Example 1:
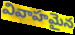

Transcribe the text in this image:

వివాహమైన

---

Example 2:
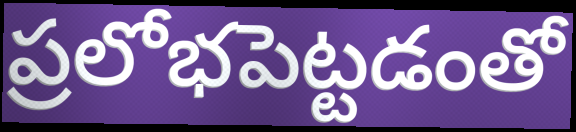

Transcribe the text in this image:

ప్రలోభపెట్టడంతో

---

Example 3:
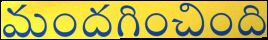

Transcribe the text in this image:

మందగించింది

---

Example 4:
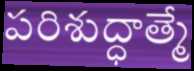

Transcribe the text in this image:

పరిశుద్ధాత్మే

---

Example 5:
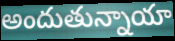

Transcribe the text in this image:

అందుతున్నాయా